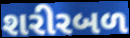
શરીરબળ